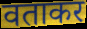
वताकर